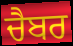
ਚੈਬਰ